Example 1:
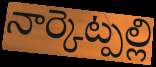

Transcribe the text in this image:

నార్కెట్పల్లి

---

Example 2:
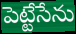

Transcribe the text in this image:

పెట్టేసేను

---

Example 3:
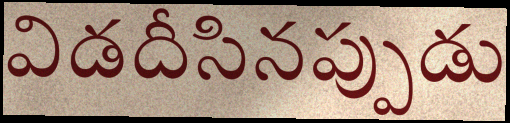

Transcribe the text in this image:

విడదీసినప్పుడు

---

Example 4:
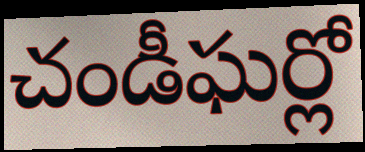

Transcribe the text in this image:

చండీఘర్లో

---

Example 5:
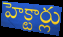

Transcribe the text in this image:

హెక్టార్లు